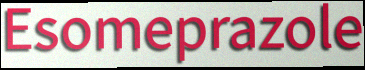
Esomeprazole